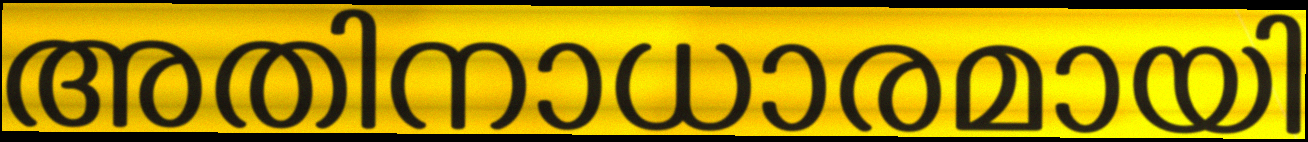
അതിനാധാരമായി